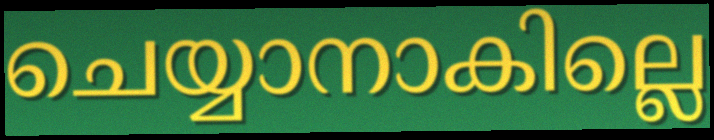
ചെയ്യാനാകില്ലെ